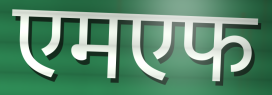
एमएफ